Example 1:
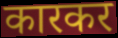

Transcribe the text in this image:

कारकर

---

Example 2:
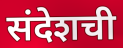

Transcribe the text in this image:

संदेशची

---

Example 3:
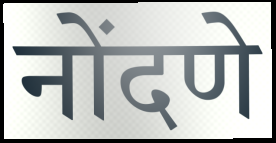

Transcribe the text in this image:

नोंदणे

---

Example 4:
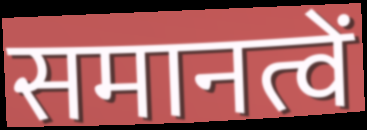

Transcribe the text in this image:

समानत्वें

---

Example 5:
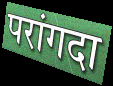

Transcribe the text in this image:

परांगदा